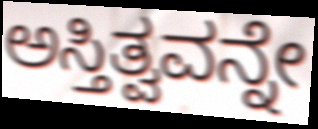
ಅಸ್ತಿತ್ವವನ್ನೇ